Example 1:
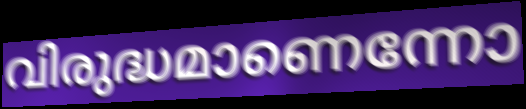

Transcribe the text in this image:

വിരുദ്ധമാണെന്നോ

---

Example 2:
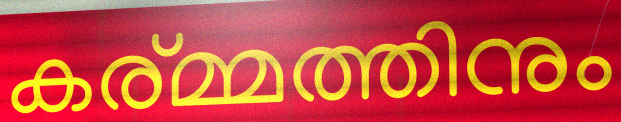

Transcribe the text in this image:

കര്മ്മത്തിനും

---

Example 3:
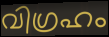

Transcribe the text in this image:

വിഗ്രഹം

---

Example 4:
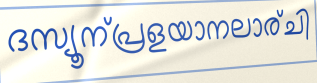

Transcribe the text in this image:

ദസ്യൂന്പ്രളയാനലാര്ചി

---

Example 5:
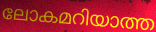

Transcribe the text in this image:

ലോകമറിയാത്ത